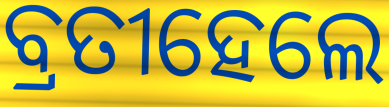
ବ୍ରତୀହେଲେ